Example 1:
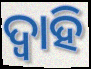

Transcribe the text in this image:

ଦ୍ଵାହି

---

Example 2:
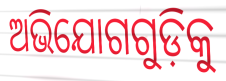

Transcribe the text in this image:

ଅଭିଯୋଗଗୁଡ଼ିକୁ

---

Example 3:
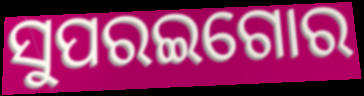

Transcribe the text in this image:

ସୁପରଇଗୋର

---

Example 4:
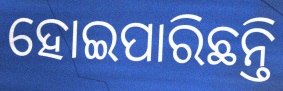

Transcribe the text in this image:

ହୋଇପାରିଛନ୍ତି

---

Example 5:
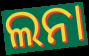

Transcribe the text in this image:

ଲନା